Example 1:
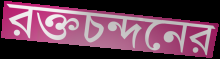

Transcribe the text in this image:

রক্তচন্দনের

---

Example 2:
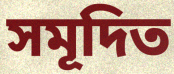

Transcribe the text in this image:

সমূদিত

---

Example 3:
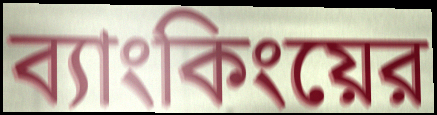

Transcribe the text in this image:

ব্যাংকিংয়ের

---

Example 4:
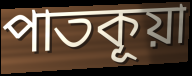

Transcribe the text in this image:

পাতকূয়া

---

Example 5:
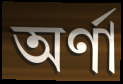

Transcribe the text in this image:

অর্ণা